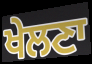
ਖੇਲਣਾ